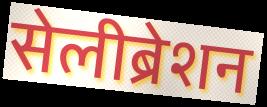
सेलीब्रेशन